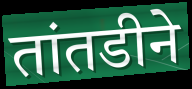
तांतडीने